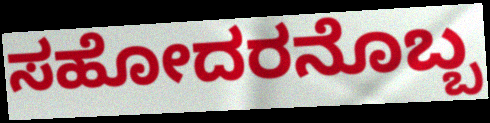
ಸಹೋದರನೊಬ್ಬ